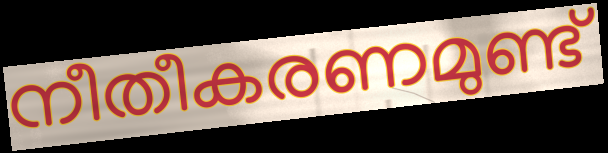
നീതീകരണമുണ്ട്